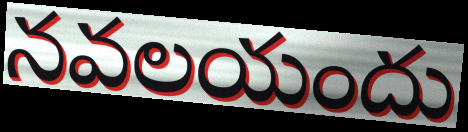
నవలయందు